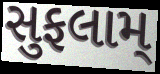
સુફલામ્